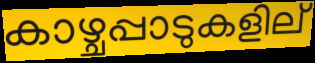
കാഴ്ചപ്പാടുകളില്